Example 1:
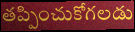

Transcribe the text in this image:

తప్పించుకోగలడు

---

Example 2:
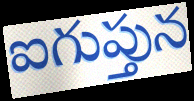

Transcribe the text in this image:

ఐగుప్తున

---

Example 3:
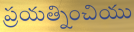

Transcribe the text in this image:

ప్రయత్నించియు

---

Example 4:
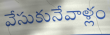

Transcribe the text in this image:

వేసుకునేవాళ్లం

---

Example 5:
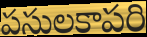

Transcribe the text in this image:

పసులకాపరి